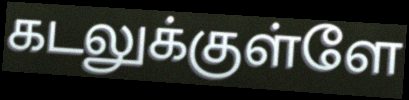
கடலுக்குள்ளே